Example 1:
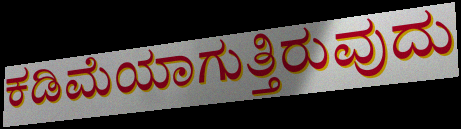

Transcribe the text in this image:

ಕಡಿಮೆಯಾಗುತ್ತಿರುವುದು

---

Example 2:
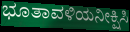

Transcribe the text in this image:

ಭೂತಾವಳಿಯನೀಕ್ಷಿಸಿ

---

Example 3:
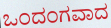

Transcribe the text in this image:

ಒಂದಂಗವಾದ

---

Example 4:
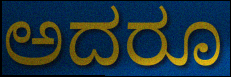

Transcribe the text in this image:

ಅದರೂ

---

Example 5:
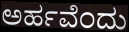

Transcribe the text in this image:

ಅರ್ಹವೆಂದು